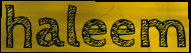
haleem